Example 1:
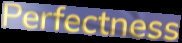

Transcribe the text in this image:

Perfectness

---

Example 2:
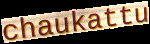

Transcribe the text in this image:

chaukattu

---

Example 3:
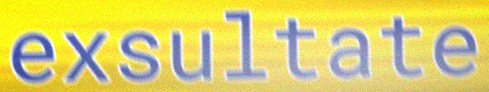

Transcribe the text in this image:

exsultate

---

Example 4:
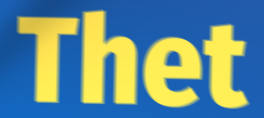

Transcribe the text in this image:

Thet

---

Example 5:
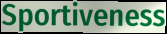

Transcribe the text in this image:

Sportiveness